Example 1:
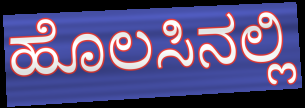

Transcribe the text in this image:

ಹೊಲಸಿನಲ್ಲಿ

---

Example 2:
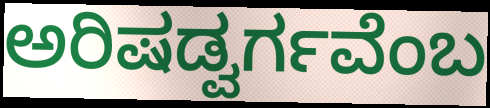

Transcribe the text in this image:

ಅರಿಷಡ್ವರ್ಗವೆಂಬ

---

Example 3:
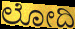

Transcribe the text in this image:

ಲೋದಿ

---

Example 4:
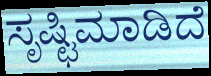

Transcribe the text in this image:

ಸೃಷ್ಟಿಮಾಡಿದೆ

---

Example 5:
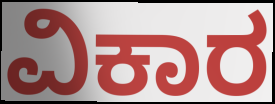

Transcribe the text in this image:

ವಿಕಾರ